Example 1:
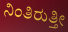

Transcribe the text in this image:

ನಿಂತಿರುತ್ತೀ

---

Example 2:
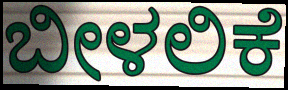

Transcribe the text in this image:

ಬೀಳಲಿಕೆ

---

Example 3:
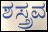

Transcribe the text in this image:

ಶಸ್ತ್ರವ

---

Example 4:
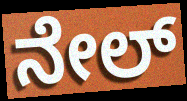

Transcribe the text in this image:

ನೇಲ್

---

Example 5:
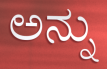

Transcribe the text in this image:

ಅನ್ನು